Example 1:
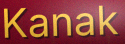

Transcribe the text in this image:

Kanak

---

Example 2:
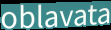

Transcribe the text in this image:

oblavata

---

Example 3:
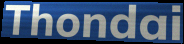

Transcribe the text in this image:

Thondai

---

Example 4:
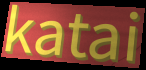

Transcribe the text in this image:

katai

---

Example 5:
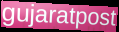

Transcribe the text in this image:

gujaratpost